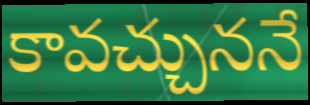
కావచ్చుననే